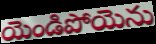
యెండిపోయెను